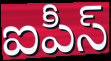
ఐపీస్